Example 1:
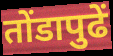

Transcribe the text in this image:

तोंडापुढें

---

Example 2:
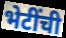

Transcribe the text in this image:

भेटींची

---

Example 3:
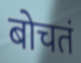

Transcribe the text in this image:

बोचतं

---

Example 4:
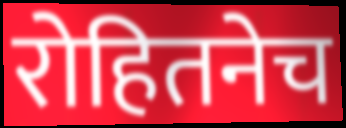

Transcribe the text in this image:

रोहितनेच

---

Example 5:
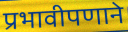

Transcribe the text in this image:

प्रभावीपणाने